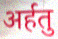
अर्हतु